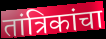
तांत्रिकांचा